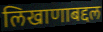
लिखाणाबद्दल